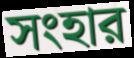
সংহার